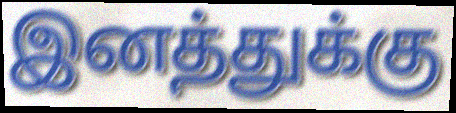
இனத்துக்கு